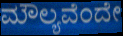
ಮೌಲ್ಯವೆಂದೇ